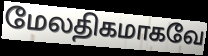
மேலதிகமாகவே